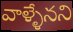
వాళ్ళేనని